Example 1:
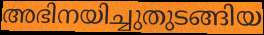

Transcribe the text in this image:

അഭിനയിച്ചുതുടങ്ങിയ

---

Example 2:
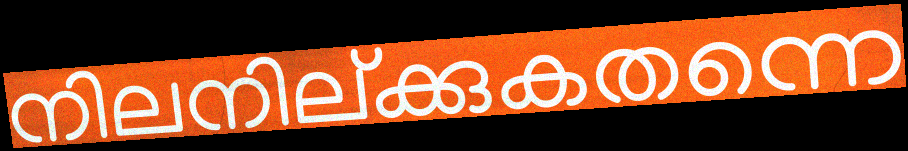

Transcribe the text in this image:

നിലനില്ക്കുകതന്നെ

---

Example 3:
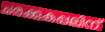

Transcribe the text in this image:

ചരക്കുകപ്പലിന്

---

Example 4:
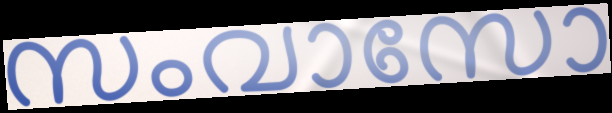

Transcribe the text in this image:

സംവാസോ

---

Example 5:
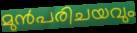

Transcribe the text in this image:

മുൻപരിചയവും